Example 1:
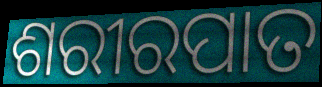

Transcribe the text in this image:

ଶରୀରପାତ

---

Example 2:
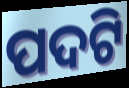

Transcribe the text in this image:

ପଦଟି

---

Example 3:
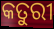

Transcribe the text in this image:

କତୁରୀ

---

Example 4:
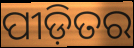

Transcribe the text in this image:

ପୀଡ଼ିତର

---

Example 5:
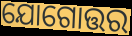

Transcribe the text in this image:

ଯୋଗୋତ୍ତର